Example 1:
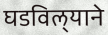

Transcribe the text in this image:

घडविल्याने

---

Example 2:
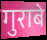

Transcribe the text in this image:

गुराबे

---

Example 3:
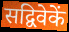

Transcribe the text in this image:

सद्विवेकें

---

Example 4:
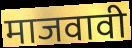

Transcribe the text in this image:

माजवावी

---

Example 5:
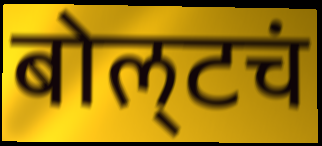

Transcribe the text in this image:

बोल्टचं